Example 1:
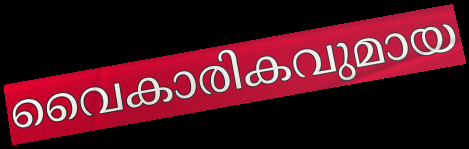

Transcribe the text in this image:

വൈകാരികവുമായ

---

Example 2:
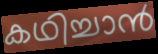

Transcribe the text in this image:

കഥിച്ചാൻ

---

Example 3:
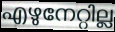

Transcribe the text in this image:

എഴുനേറ്റില്ല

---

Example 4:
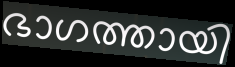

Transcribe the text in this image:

ഭാഗത്തായി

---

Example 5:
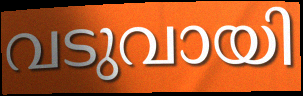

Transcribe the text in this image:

വടുവായി